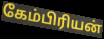
கேம்பிரியன்